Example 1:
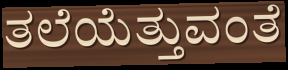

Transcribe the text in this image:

ತಲೆಯೆತ್ತುವಂತೆ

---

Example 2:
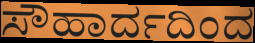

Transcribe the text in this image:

ಸೌಹಾರ್ದದಿಂದ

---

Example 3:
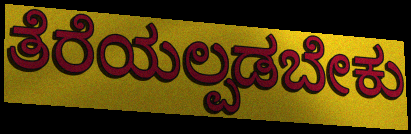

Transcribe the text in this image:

ತೆರೆಯಲ್ಪಡಬೇಕು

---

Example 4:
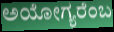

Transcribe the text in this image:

ಅಯೋಗ್ಯರೆಂಬ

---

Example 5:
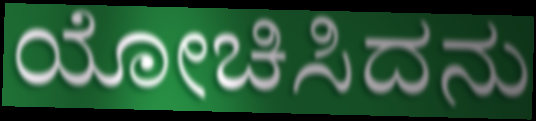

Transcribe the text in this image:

ಯೋಚಿಸಿದನು